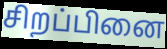
சிறப்பினை